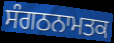
ਸੰਗਠਨਾਮਤਕ